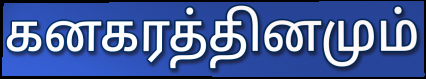
கனகரத்தினமும்